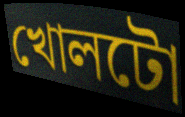
খোলটো